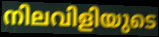
നിലവിളിയുടെ